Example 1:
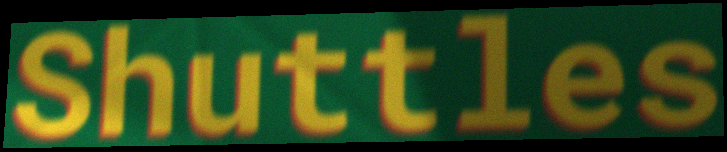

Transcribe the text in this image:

Shuttles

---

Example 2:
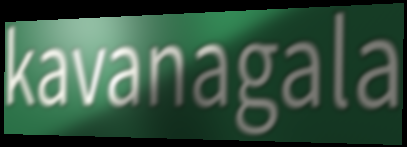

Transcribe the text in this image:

kavanagala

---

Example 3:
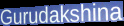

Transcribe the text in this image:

Gurudakshina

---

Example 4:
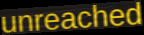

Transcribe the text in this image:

unreached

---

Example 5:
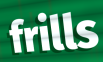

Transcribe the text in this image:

frills